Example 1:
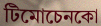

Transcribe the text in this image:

টিমোচেনকো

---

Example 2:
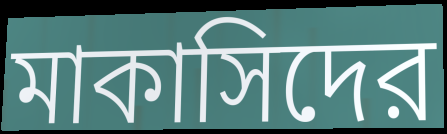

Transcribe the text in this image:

মাকাসিদের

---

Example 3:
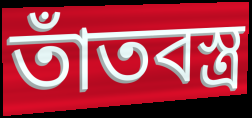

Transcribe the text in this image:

তাঁতবস্ত্র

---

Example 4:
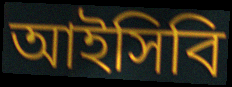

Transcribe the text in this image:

আইসিবি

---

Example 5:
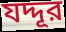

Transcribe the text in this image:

যদ্দূর